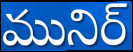
మునిర్